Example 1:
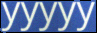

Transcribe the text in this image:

yyyyy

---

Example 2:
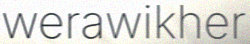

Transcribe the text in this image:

werawikher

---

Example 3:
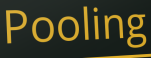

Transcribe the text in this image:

Pooling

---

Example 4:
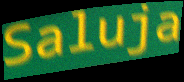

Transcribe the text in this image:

Saluja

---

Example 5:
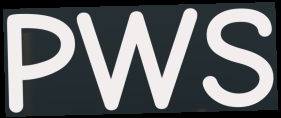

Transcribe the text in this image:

PWS